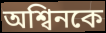
অশ্বিনকে